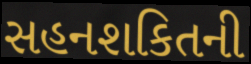
સહનશકિતની